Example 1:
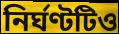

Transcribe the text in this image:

নির্ঘণ্টটিও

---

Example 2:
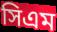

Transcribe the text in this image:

সিএম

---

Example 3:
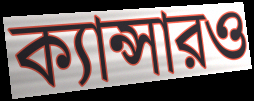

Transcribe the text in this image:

ক্যান্সারও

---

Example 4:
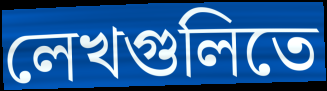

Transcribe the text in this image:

লেখগুলিতে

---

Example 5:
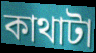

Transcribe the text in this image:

কাথাটা